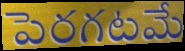
పెరగటమే